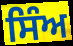
ਸਿੰਅ